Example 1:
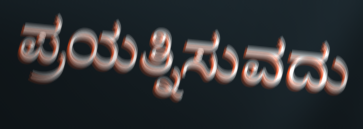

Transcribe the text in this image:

ಪ್ರಯತ್ನಿಸುವದು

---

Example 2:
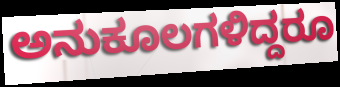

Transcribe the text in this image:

ಅನುಕೂಲಗಳಿದ್ದರೂ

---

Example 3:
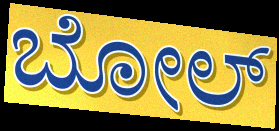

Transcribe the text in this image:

ಬೋಲ್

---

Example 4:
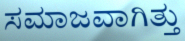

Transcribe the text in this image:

ಸಮಾಜವಾಗಿತ್ತು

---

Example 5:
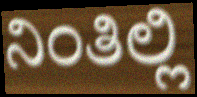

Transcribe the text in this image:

ನಿಂತಿಲ್ಲಿ